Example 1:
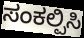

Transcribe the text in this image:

ಸಂಕಲ್ಪಿಸಿ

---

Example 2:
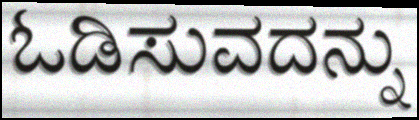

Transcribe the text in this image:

ಓಡಿಸುವದನ್ನು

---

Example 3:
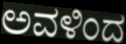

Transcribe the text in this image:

ಅವಳಿಂದ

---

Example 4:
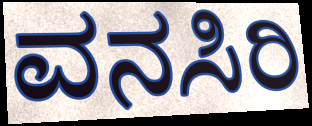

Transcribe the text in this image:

ವನಸಿರಿ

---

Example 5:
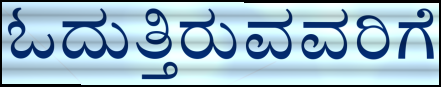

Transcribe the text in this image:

ಓದುತ್ತಿರುವವರಿಗೆ